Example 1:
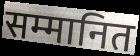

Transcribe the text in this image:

सम्मानित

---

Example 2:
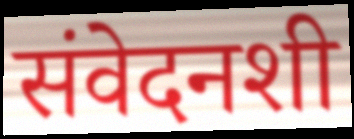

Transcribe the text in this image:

संवेदनशी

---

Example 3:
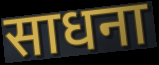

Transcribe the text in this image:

साधना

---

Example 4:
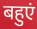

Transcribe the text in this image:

बहुएं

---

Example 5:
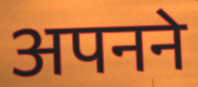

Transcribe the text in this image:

अपनने